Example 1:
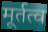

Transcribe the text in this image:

मूर्तत्व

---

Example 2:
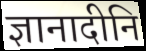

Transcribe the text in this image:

ज्ञानादीनि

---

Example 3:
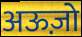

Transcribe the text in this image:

अऊज़ो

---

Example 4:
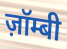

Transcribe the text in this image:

ज़ॉम्बी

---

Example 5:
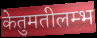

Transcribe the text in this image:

केतुमतीलम्भ